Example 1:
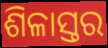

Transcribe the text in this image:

ଶିଳାସ୍ତର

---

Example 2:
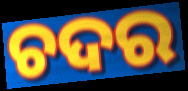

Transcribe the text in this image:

ଚଦର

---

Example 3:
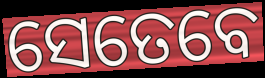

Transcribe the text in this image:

ସେତେବେ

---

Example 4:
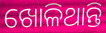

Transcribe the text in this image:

ଖୋଳିଥାନ୍ତି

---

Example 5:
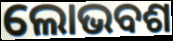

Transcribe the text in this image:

ଲୋଭବଶ